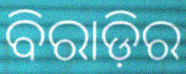
ବିରାଡ଼ିର